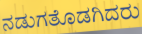
ನಡುಗತೊಡಗಿದರು